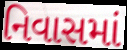
નિવાસમાં